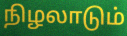
நிழலாடும்